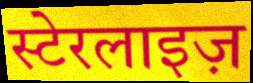
स्टेरलाइज़